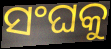
ସଂଘକୁ